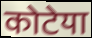
कोटेया